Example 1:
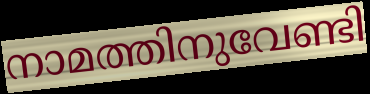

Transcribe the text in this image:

നാമത്തിനുവേണ്ടി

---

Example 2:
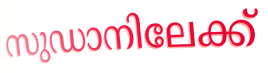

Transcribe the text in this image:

സുഡാനിലേക്ക്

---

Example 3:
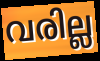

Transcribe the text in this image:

വരില്ല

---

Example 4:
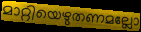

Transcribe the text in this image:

മാറ്റിയെഴുതണമല്ലോ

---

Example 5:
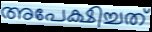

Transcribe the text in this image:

അപേക്ഷിച്ചത്